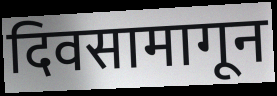
दिवसामागून